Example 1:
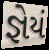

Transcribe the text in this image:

જ્ઞેયં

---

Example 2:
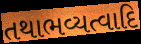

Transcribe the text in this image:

તથાભવ્યત્વાદિ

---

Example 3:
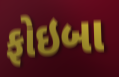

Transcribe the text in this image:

ફોઇબા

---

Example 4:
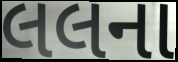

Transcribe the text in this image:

લલના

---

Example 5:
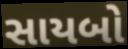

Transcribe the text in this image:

સાયબો